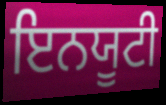
ਇਨਯੂਟੀ